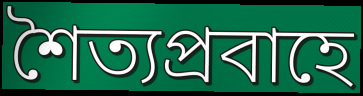
শৈত্যপ্রবাহে